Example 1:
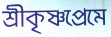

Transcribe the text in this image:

শ্রীকৃষ্ণপ্রেমে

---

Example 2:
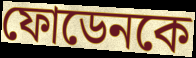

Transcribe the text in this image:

ফোডেনকে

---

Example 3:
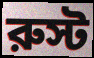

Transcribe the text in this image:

রুস্ট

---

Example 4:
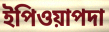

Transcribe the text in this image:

ইপিওয়াপদা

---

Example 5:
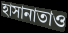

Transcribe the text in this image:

হাসানাতাও